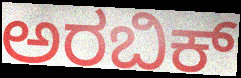
ಅರಬಿಕ್